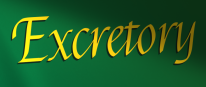
Excretory